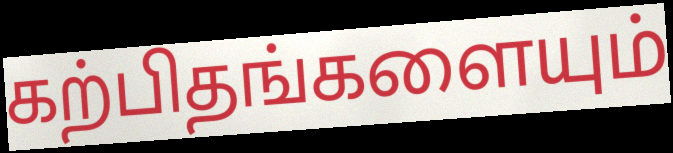
கற்பிதங்களையும்